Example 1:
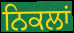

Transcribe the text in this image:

ਨਿਕਲਾਂ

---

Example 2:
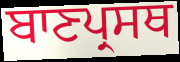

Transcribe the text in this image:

ਬਾਣਪ੍ਰਸਥ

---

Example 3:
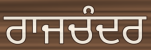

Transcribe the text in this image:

ਰਾਜਚੰਦਰ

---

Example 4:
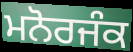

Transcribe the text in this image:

ਮਨੋਰਜੰਕ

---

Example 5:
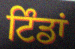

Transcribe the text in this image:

ਟਿੰਡਾਂ